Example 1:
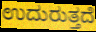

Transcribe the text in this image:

ಉದುರುತ್ತದೆ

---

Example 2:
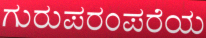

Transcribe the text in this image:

ಗುರುಪರಂಪರೆಯ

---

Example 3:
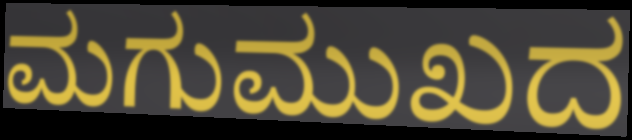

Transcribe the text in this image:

ಮಗುಮುಖದ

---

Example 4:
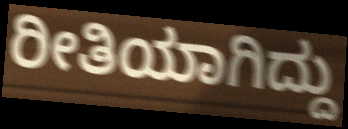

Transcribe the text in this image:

ರೀತಿಯಾಗಿದ್ದು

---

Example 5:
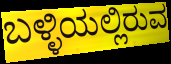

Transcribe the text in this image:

ಬಳ್ಳಿಯಲ್ಲಿರುವ